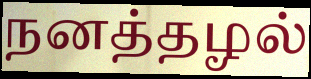
நனத்தழல்